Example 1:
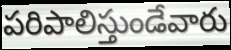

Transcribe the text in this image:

పరిపాలిస్తుండేవారు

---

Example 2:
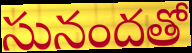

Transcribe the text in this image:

సునందతో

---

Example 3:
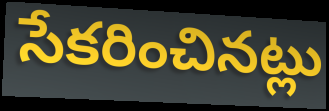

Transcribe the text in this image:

సేకరించినట్లు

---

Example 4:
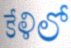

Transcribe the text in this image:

కేళిలో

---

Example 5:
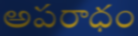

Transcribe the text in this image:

అపరాధం